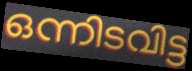
ഒന്നിടവിട്ട